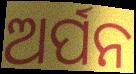
ଅର୍ପନ